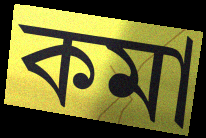
কমা